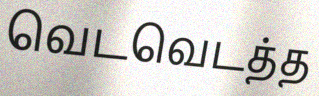
வெடவெடத்த